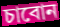
চাবোন